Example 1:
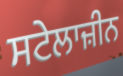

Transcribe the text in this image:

ਸਟੇਲਾਜ਼ੀਨ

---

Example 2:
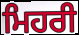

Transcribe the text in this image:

ਮਿਹਰੀ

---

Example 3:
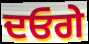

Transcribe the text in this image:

ਦਓਗੇ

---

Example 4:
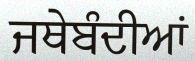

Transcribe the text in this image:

ਜਥੇਬੰਦੀਆਂ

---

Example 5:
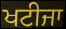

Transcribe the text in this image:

ਖਟੀਜਾ